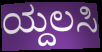
ಯ್ದಲಸಿ